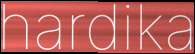
hardika